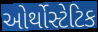
ઓર્થોસ્ટેટિક